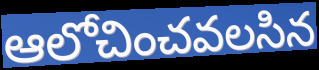
ఆలోచించవలసిన